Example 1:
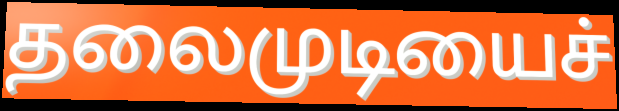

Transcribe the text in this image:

தலைமுடியைச்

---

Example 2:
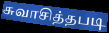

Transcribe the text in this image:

சுவாசித்தபடி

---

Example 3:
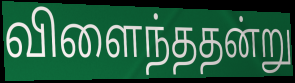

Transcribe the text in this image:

விளைந்ததன்று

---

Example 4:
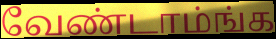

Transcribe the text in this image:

வேண்டாம்ங்க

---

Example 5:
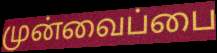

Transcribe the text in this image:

முன்வைப்பை